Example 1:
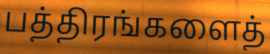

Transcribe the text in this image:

பத்திரங்களைத்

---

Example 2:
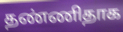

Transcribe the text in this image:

தண்ணிதாக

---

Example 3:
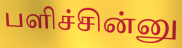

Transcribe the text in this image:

பளிச்சின்னு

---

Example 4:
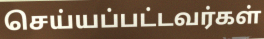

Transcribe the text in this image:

செய்யப்பட்டவர்கள்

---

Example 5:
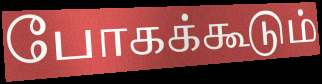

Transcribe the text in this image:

போகக்கூடும்